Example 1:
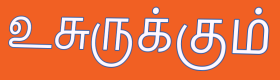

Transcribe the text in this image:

உசுருக்கும்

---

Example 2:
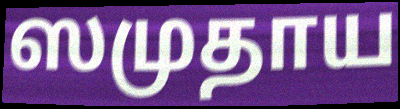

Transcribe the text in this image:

ஸமுதாய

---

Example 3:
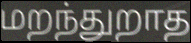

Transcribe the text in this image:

மறந்துறாத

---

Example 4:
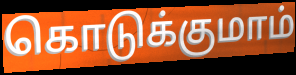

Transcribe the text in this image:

கொடுக்குமாம்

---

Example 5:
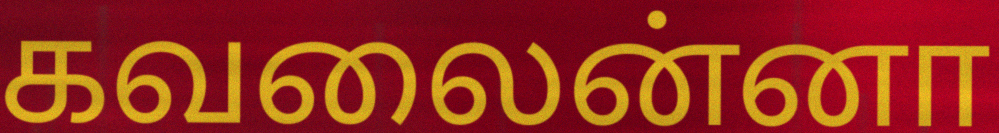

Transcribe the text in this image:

கவலைன்னா